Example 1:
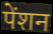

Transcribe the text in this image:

पेंशन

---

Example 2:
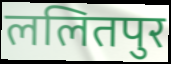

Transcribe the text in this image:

ललितपुर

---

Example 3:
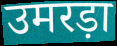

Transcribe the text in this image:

उमरड़ा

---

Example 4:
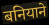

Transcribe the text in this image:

बनियाने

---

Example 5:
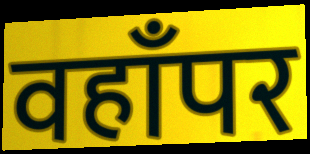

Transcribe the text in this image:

वहाँपर